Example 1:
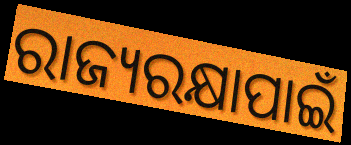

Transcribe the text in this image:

ରାଜ୍ୟରକ୍ଷାପାଇଁ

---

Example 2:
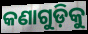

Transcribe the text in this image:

କଣାଗୁଡ଼ିକୁ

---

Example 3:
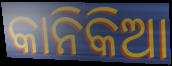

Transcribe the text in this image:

କାନିକିଆ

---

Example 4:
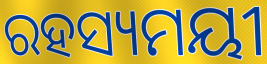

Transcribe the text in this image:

ରହସ୍ୟମୟୀ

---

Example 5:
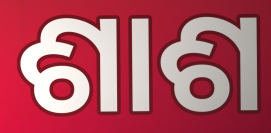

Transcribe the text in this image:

ଶାଶ